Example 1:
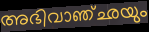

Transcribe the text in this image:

അഭിവാഞ്ഛയും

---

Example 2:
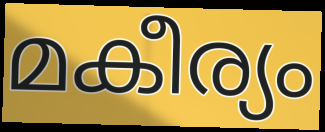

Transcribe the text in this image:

മകീര്യം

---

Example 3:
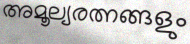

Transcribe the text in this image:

അമൂല്യരത്നങ്ങളും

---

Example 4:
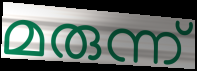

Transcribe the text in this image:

മരുന്ന്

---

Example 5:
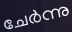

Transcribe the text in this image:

ചേർന്നു